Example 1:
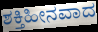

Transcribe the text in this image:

ಶಕ್ತಿಹೀನವಾದ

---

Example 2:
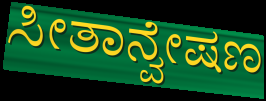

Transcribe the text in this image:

ಸೀತಾನ್ವೇಷಣ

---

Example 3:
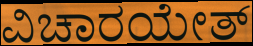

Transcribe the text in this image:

ವಿಚಾರಯೇತ್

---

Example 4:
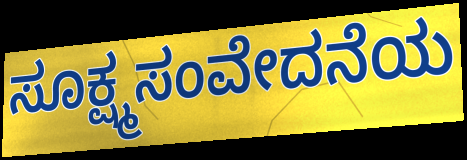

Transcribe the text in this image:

ಸೂಕ್ಷ್ಮಸಂವೇದನೆಯ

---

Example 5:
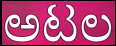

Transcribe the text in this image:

ಅಟಲ